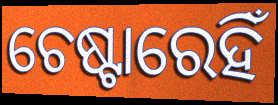
ଚେଷ୍ଟାରେହିଁ